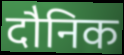
दौनिक